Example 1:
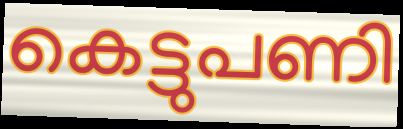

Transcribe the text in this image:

കെട്ടുപണി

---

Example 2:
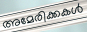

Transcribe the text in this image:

അമേരിക്കകൾ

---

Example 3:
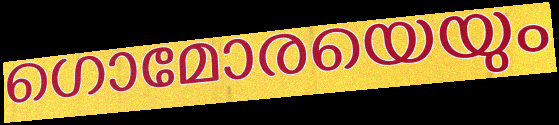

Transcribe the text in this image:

ഗൊമോരയെയും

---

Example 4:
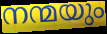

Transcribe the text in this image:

നന്മയും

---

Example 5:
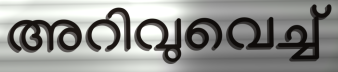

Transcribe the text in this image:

അറിവുവെച്ച്